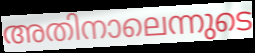
അതിനാലെന്നുടെ